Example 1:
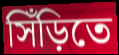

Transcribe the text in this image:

সিঁড়িতে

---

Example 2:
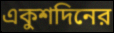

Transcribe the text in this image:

একুশদিনের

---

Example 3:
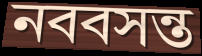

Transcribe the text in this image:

নববসন্ত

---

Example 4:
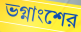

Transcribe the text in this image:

ভগ্নাংশের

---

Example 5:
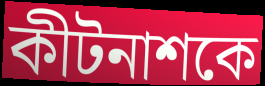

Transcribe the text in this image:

কীটনাশকে